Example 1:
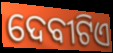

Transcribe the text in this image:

ଦେବୀଟିଏ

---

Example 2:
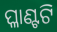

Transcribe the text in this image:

ପ୍ଳାଣ୍ଟଟି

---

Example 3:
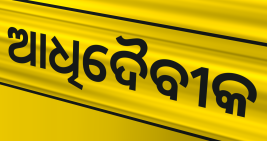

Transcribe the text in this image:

ଆଧିଦୈବୀକ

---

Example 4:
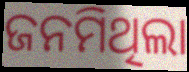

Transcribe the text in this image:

ଜନମିଥିଲା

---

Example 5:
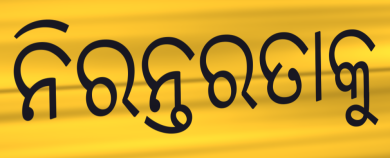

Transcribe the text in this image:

ନିରନ୍ତରତାକୁ